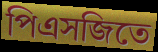
পিএসজিতে